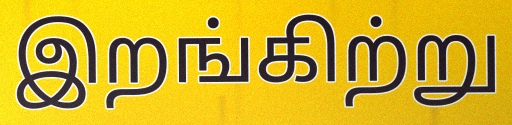
இறங்கிற்று